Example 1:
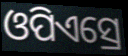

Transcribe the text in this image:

ଓପିଏସ୍ରେ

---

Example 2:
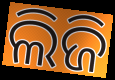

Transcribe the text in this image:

ଲିଜି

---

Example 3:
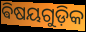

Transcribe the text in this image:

ଵିଷୟଗୁଡ଼ିକ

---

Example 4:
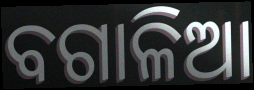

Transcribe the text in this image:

ବଗାଳିଆ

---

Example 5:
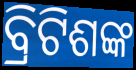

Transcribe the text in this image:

ବ୍ରିଟିଶଙ୍କ